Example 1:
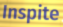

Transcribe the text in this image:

Inspite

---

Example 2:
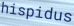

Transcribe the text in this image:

hispidus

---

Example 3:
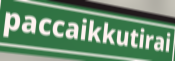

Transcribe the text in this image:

paccaikkutirai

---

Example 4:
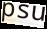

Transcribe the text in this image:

psu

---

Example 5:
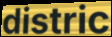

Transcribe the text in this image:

distric